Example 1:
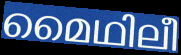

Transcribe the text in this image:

മൈഥിലീ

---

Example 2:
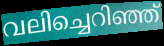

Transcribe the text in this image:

വലിച്ചെറിഞ്ഞ്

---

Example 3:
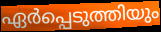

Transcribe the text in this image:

ഏർപ്പെടുത്തിയും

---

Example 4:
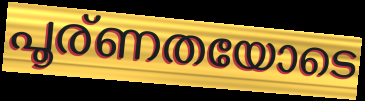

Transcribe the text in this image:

പൂര്ണതയോടെ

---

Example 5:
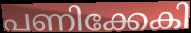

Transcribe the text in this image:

പണിക്കേകി